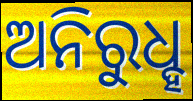
ଅନିରୁଧ୍ହ